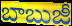
బాబుజీ